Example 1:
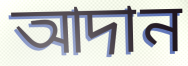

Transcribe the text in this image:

আদান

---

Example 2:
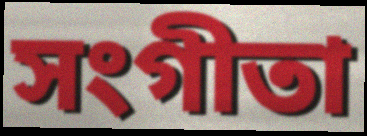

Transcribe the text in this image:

সংগীতা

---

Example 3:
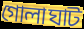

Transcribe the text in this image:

গোলাঘাট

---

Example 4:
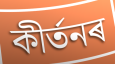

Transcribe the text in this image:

কীৰ্তনৰ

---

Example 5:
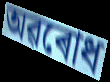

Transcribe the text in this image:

অৱৰোধ